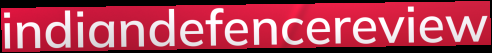
indiandefencereview